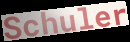
Schuler